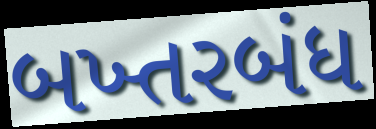
બખ્તરબંધ